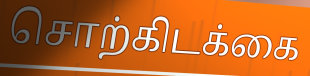
சொற்கிடக்கை